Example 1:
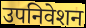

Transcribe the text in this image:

उपनिवेशन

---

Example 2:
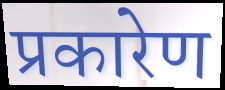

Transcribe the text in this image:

प्रकारेण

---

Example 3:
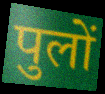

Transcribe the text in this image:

पुलों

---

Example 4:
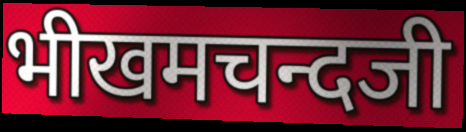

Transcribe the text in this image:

भीखमचन्दजी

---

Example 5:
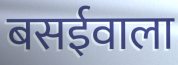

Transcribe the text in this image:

बसईवाला